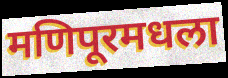
मणिपूरमधला